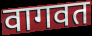
वागवत